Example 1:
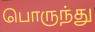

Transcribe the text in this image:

பொருந்து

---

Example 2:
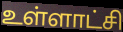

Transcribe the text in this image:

உள்ளாட்சி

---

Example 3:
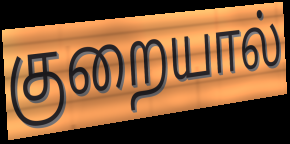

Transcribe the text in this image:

குறையால்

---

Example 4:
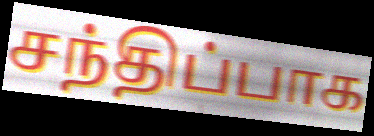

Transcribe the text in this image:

சந்திப்பாக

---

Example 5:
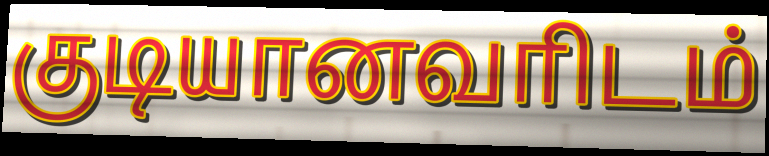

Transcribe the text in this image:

குடியானவரிடம்